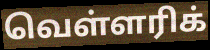
வெள்ளரிக்